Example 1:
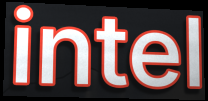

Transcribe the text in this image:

intel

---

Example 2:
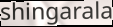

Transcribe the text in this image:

shingarala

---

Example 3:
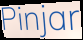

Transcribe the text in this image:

Pinjar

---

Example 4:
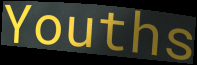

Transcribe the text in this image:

Youths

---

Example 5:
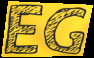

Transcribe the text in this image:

EG